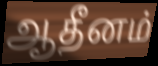
ஆதீனம்